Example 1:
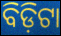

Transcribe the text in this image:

ବିଡ଼ିଟା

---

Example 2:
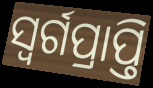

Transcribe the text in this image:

ସ୍ୱର୍ଗପ୍ରାପ୍ତି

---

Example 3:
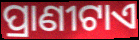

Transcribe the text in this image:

ପ୍ରାଣୀଟାଏ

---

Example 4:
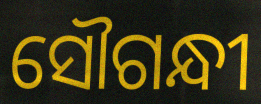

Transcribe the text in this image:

ସୌଗନ୍ଧୀ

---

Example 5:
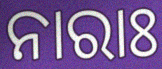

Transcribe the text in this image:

ନାରାଃ